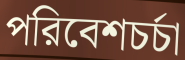
পরিবেশচর্চা